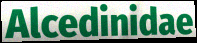
Alcedinidae